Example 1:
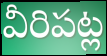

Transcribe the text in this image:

వీరిపట్ల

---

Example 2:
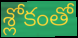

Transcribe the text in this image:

శ్లోకంతో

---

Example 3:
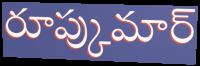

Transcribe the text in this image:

రూప్కుమార్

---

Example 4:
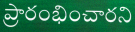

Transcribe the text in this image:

ప్రారంభించారని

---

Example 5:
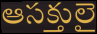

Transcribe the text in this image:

ఆసక్తులై